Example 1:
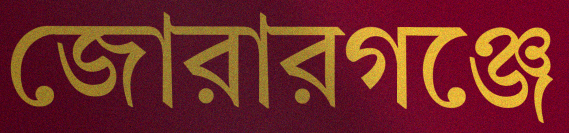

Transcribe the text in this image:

জোরারগঞ্জে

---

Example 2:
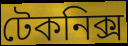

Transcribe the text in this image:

টেকনিক্স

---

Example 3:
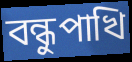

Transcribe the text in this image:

বন্ধুপাখি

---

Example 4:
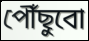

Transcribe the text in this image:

পৌঁছুবো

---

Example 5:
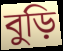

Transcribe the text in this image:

বুড়ি